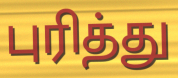
புரித்து